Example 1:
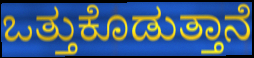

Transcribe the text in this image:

ಒತ್ತುಕೊಡುತ್ತಾನೆ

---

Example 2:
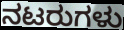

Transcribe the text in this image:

ನಟರುಗಳು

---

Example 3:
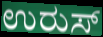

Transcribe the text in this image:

ಉರುಸ್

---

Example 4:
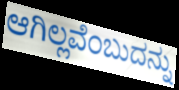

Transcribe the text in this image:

ಆಗಿಲ್ಲವೆಂಬುದನ್ನು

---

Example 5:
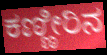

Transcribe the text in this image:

ಕಣ್ಣೀರಿನ